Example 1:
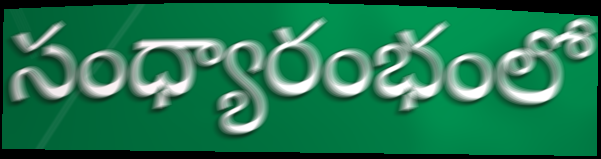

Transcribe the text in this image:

సంధ్యారంభంలో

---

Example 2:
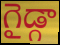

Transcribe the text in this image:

గైడ్గా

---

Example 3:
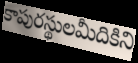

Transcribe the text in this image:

కాపురస్థులమీదికిని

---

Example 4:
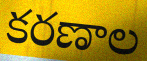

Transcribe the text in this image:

కరణాల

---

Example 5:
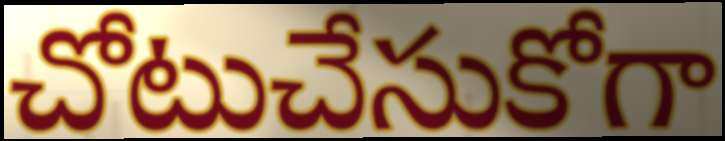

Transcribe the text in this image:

చోటుచేసుకోగా